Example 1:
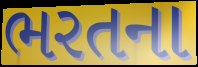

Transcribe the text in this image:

ભરતના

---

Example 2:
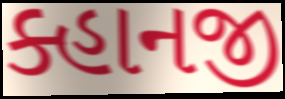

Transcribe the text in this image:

ક્હાનજી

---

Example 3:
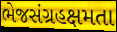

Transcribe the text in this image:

ભેજસંગ્રહક્ષમતા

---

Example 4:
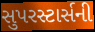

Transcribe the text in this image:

સુપરસ્ટાર્સની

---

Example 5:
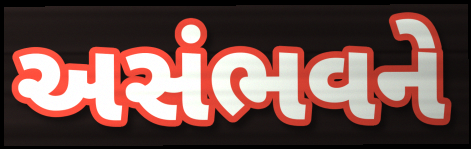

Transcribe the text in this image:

અસંભવને